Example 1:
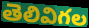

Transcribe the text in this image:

తెలివిగల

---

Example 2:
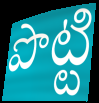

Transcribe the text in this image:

పొట్టి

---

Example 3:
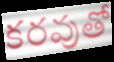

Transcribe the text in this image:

కరవుతో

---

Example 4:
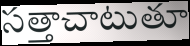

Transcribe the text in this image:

సత్తాచాటుతూ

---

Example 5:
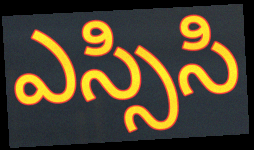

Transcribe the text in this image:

ఎస్సిసి